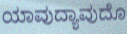
ಯಾವುದ್ಯಾವುದೊ